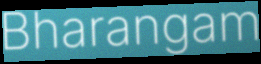
Bharangam